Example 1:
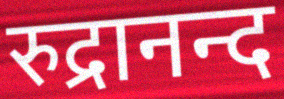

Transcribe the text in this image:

रुद्रानन्द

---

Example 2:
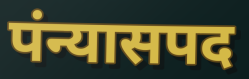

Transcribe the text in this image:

पंन्यासपद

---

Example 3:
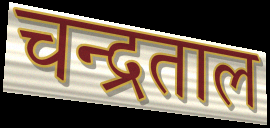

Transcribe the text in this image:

चन्द्रताल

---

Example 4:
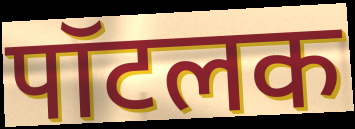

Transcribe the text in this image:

पॉटलक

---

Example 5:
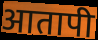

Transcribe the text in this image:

आतापी